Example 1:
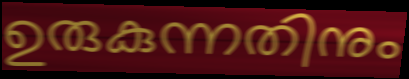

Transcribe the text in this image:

ഉരുകുന്നതിനും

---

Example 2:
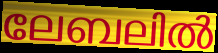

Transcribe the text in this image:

ലേബലിൽ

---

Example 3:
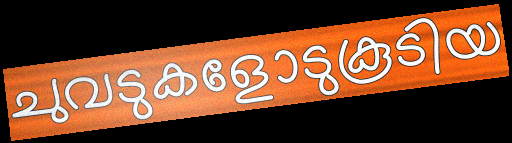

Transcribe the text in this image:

ചുവടുകളോടുകൂടിയ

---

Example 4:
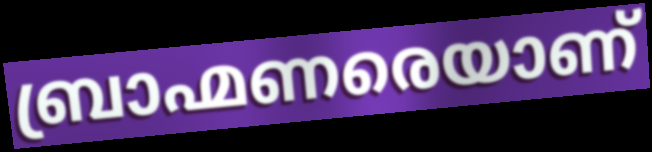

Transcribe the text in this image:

ബ്രാഹ്മണരെയാണ്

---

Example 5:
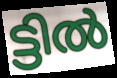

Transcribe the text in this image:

ട്ടിൽ